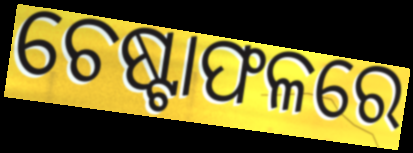
ଚେଷ୍ଟାଫଳରେ